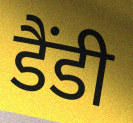
डैंडी